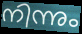
നിന്നും